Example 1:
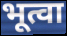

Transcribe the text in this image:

भूत्वा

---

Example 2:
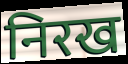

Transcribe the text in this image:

निरख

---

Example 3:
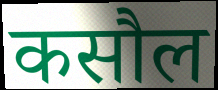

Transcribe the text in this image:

कसौल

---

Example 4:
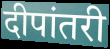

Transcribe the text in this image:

दीपांतरी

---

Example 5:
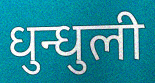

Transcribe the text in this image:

धुन्धुली